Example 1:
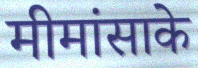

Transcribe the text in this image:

मीमांसाके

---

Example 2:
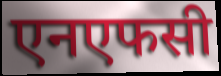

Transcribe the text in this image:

एनएफसी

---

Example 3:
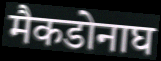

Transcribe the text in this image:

मैकडोनाघ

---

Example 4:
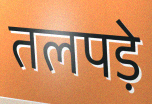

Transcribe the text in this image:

तलपड़े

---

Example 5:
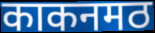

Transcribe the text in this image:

काकनमठ